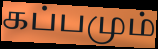
கப்பமும்